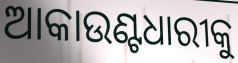
ଆକାଉଣ୍ଟଧାରୀକୁ